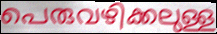
പെരുവഴിക്കലുള്ള